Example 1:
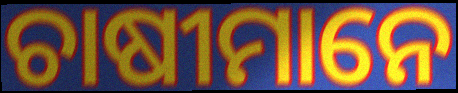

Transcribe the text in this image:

ଚାଷୀମାନେ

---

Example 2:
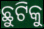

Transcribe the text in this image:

ଛୁଟିକୁ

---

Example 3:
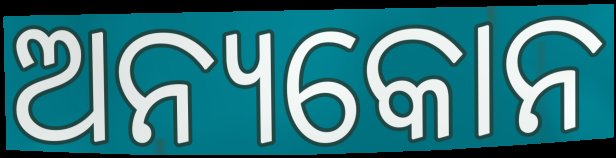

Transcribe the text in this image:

ଅନ୍ୟକୋନ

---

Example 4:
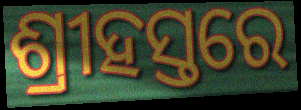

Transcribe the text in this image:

ଶ୍ରୀହସ୍ତରେ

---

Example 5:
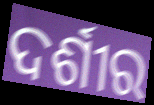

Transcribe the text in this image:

ଦର୍ଶୀର